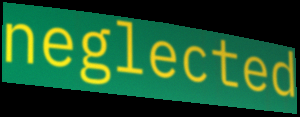
neglected